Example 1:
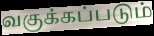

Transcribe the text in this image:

வகுக்கப்படும்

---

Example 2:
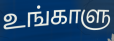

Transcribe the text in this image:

உங்காளு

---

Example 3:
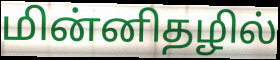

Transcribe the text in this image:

மின்னிதழில்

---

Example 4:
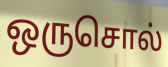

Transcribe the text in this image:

ஒருசொல்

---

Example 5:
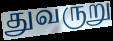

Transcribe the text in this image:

துவருறு